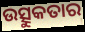
ଉତ୍ସୁକତାର